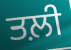
ਤਲ਼ੀ